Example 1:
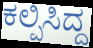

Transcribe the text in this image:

ಕಲ್ಪಿಸಿದ್ದ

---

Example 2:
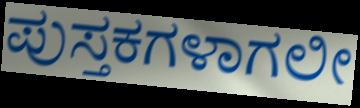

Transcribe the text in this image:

ಪುಸ್ತಕಗಳಾಗಲೀ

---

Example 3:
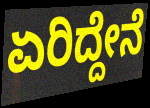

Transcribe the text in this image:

ಏರಿದ್ದೇನೆ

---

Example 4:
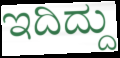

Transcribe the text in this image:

ಇದಿದ್ದು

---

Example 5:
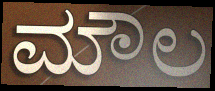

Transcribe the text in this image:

ಮೌಲ